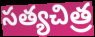
సత్యచిత్ర